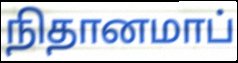
நிதானமாப்